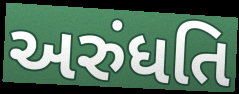
અરુંધતિ